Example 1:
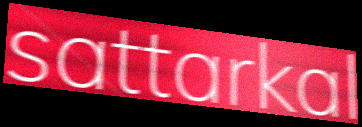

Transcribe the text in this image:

sattarkal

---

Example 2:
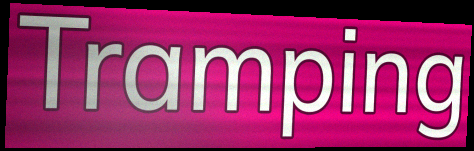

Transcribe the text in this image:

Tramping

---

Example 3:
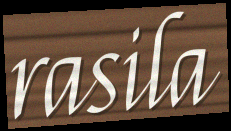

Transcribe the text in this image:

rasila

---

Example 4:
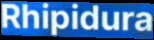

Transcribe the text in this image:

Rhipidura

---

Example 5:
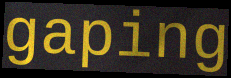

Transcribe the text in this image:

gaping